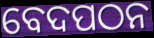
ବେଦପଠନ